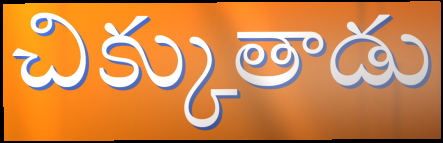
చిక్కుతాడు